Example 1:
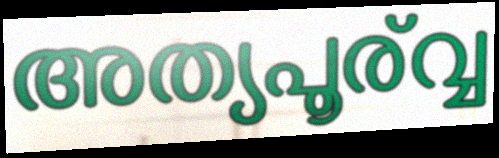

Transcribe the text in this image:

അത്യപൂര്വ്വ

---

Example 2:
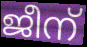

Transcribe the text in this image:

ജീന്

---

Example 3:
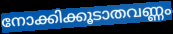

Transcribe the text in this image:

നോക്കിക്കൂടാതവണ്ണം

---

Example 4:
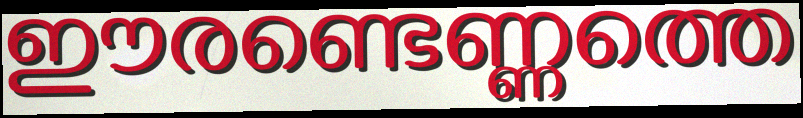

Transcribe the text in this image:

ഈരണ്ടെണ്ണത്തെ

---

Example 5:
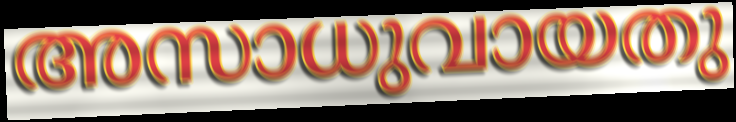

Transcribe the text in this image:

അസാധുവായതു